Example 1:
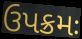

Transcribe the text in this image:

ઉપક્રમઃ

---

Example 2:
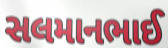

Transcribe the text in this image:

સલમાનભાઈ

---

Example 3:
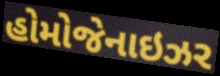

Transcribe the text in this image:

હોમોજેનાઇઝર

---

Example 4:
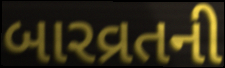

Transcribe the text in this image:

બારવ્રતની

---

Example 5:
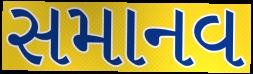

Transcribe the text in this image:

સમાનવ